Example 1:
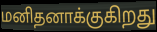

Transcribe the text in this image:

மனிதனாக்குகிறது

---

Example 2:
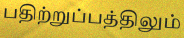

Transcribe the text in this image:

பதிற்றுப்பத்திலும்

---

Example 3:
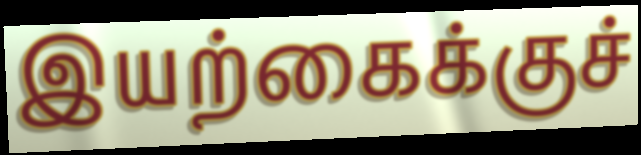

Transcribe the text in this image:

இயற்கைக்குச்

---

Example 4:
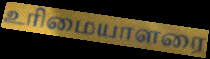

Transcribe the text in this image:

உரிமையாளரை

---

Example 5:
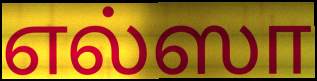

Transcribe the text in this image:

எல்ஸா